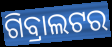
ଗିବ୍ରାଲଟର